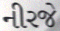
નીરજે